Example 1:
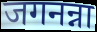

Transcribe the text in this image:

जगनन्ना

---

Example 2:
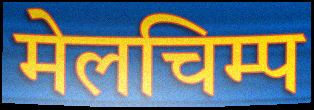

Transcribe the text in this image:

मेलचिम्प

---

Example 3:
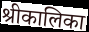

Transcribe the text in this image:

श्रीकालिका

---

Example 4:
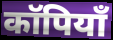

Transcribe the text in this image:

कॉपियाँ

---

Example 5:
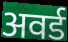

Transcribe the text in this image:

अवर्ड